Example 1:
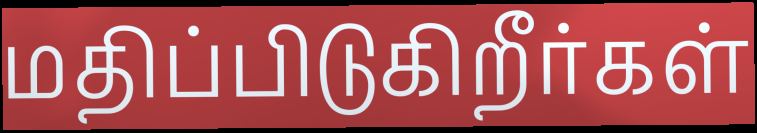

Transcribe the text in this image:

மதிப்பிடுகிறீர்கள்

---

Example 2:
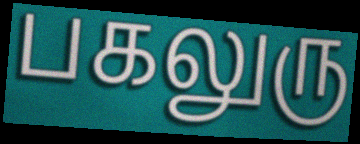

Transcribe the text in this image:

பகலுரு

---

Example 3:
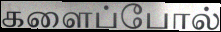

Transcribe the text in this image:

களைப்போல்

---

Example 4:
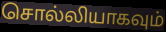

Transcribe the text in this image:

சொல்லியாகவும்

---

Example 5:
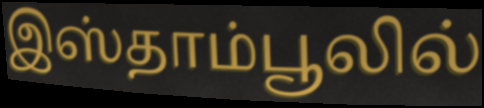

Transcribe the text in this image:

இஸ்தாம்பூலில்